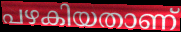
പഴകിയതാണ്